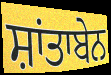
ਸ਼ਾਂਤਾਬੇਨ